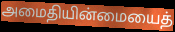
அமைதியின்மையைத்